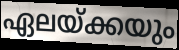
ഏലയ്ക്കയും